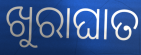
ଖୁରାଘାତ